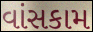
વાંસકામ